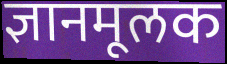
ज्ञानमूलक